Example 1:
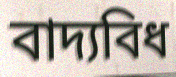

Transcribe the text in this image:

বাদ্যবিধ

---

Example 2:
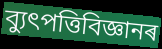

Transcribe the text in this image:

ব্যুৎপত্তিবিজ্ঞানৰ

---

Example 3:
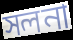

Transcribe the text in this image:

সলনা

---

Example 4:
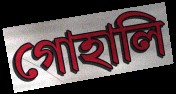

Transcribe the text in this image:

গোহালি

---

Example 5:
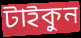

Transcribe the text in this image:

টাইকুন